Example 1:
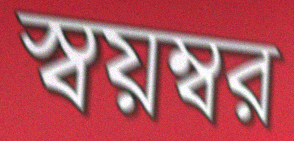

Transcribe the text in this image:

স্বয়ম্বর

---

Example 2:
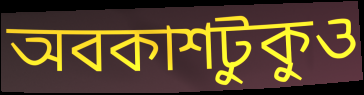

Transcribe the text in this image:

অবকাশটুকুও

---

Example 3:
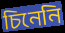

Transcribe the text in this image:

চিনেনি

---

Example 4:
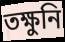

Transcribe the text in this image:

তক্ষুনি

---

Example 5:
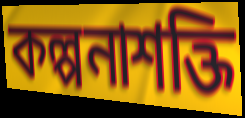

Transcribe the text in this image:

কল্পনাশক্তি